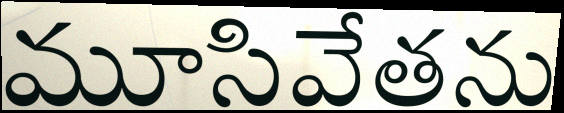
మూసివేతను